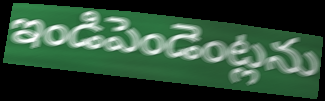
ఇండిపెండెంట్లను